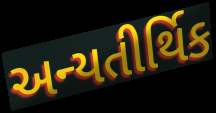
અન્યતીર્થિક